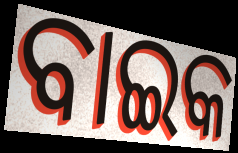
ବାଇକ